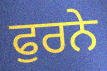
ਫੁਰਨੇ